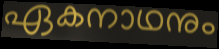
ഏകനാഥനും